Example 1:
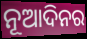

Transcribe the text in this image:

ନୂଆଦିନର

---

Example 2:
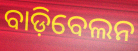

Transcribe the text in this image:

ବାଡ଼ିବେଲନ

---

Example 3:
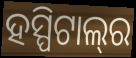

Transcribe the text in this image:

ହସ୍ପିଟାଲ୍‌ର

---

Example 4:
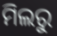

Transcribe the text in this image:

ମିଲରୁ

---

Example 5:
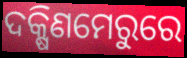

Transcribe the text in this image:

ଦକ୍ଷିଣମେରୁରେ